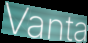
Vanta